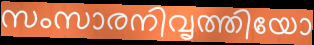
സംസാരനിവൃത്തിയോ